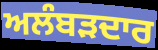
ਅਲੰਬੜਦਾਰ